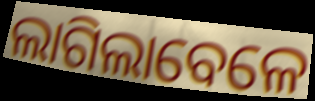
ଲାଗିଲାବେଳେ